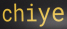
chiye